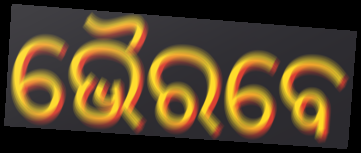
ଭୈରବେ